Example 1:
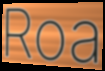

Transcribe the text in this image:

Roa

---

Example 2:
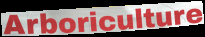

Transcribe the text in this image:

Arboriculture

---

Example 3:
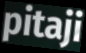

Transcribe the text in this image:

pitaji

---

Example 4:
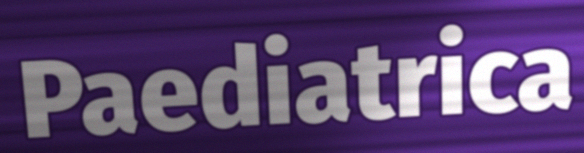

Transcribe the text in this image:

Paediatrica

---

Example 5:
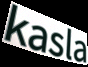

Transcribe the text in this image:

kasla